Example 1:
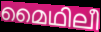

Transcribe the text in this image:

മൈഥിലീ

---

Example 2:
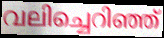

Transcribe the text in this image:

വലിച്ചെറിഞ്ഞ്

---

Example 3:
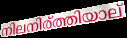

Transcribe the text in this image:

നിലനിര്ത്തിയാല്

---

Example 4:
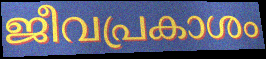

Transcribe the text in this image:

ജീവപ്രകാശം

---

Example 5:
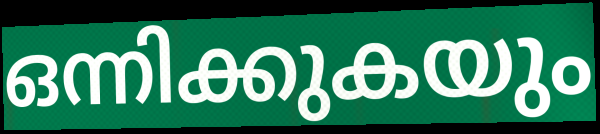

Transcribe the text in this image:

ഒന്നിക്കുകയും